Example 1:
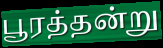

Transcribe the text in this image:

பூரத்தன்று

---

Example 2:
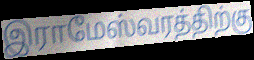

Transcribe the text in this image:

இராமேஸ்வரத்திற்கு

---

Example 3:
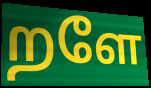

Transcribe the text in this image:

றளே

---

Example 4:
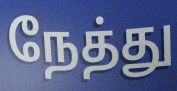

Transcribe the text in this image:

நேத்து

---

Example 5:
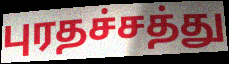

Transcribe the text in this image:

புரதச்சத்து